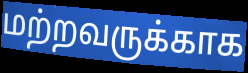
மற்றவருக்காக